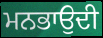
ਮਨਭਾਉਦੀ